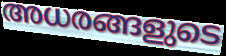
അധരങ്ങളുടെ